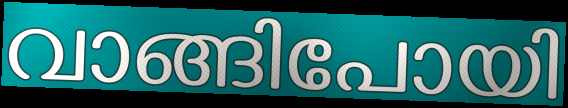
വാങ്ങിപോയി